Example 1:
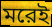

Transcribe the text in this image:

মরেই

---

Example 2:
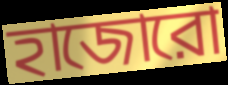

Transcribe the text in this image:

হাজোরো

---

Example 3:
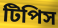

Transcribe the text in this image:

টিপিস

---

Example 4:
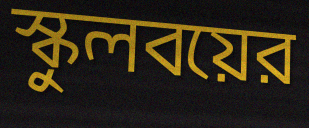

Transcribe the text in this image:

স্কুলবয়ের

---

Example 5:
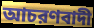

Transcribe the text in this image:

আচরণবাদী